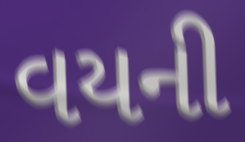
વયની